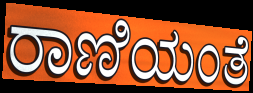
ರಾಣಿಯಂತೆ